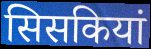
सिसकियां